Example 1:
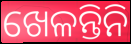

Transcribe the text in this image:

ଖେଳନ୍ତିନି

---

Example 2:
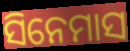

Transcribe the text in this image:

ସିନେମାସ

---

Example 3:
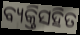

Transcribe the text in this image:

ବ୍ୟକ୍ତିସହିତ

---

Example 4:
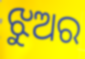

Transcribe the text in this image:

ଝୁଅର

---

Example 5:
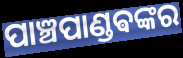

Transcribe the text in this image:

ପାଞ୍ଚପାଣ୍ଡଵଙ୍କର